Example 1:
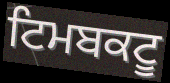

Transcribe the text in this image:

ਟਿਮਬਕਟੂ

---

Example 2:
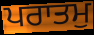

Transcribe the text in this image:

ਪਰਾਤਮੁ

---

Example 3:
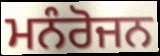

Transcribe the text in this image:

ਮਨੰਰੋਜਨ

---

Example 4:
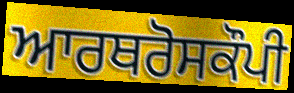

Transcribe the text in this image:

ਆਰਥਰੋਸਕੌਪੀ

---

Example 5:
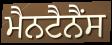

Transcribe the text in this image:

ਮੈਨਟੈਨੈਂਸ